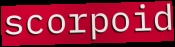
scorpoid